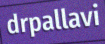
drpallavi